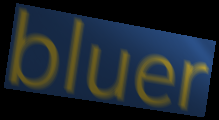
bluer